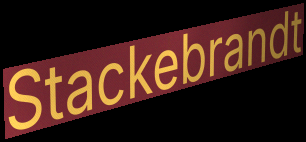
Stackebrandt